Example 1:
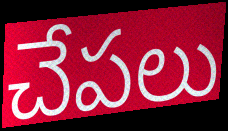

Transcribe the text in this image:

చేపలు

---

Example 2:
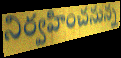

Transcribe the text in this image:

నిర్వహించనున్న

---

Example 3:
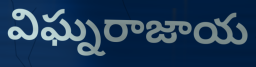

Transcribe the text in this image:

విఘ్నరాజాయ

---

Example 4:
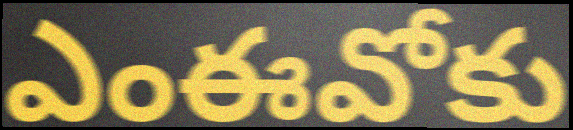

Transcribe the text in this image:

ఎంఈవోకు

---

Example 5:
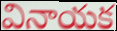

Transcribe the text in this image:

వినాయక